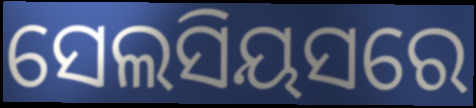
ସେଲସିୟସରେ